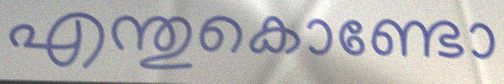
എന്തുകൊണ്ടോ